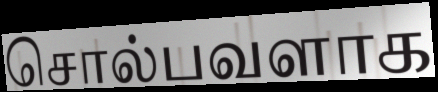
சொல்பவளாக